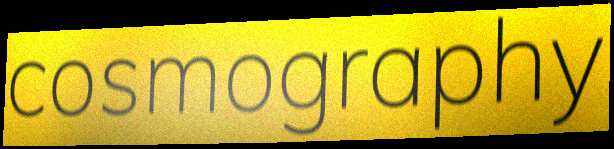
cosmography